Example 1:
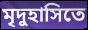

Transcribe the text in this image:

মৃদুহাসিতে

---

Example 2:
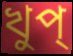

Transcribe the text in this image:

খুপ্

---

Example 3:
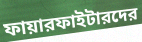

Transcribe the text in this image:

ফায়ারফাইটারদের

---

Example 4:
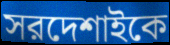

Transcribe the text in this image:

সরদেশাইকে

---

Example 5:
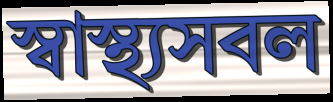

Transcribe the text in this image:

স্বাস্থ্যসবল